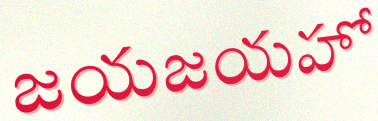
జయజయహో